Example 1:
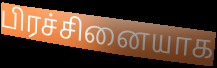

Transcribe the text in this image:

பிரச்சினையாக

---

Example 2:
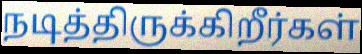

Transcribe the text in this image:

நடித்திருக்கிறீர்கள்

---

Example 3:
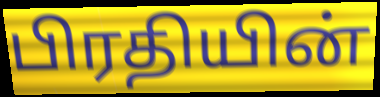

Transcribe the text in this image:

பிரதியின்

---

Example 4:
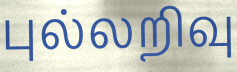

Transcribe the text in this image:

புல்லறிவு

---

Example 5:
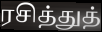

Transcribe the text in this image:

ரசித்துத்